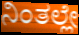
ನಿಂತಲ್ಲೇ